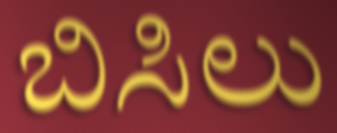
ಬಿಸಿಲು